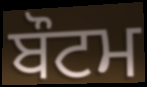
ਬੌਟਮ